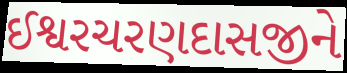
ઈશ્વરચરણદાસજીને